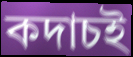
কদাচই